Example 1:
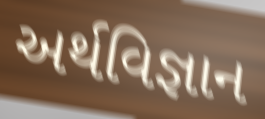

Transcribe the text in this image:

અર્થવિજ્ઞાન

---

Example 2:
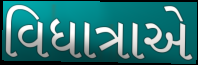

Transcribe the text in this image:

વિધાત્રાએ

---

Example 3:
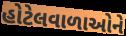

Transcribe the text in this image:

હોટેલવાળાઓને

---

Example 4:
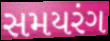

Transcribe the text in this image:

સમયરંગ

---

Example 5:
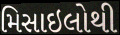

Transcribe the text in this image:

મિસાઇલોથી